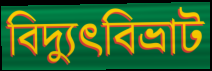
বিদ্যুৎবিভ্রাট